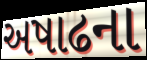
અષાઢના